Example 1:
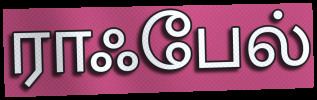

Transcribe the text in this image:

ராஃபேல்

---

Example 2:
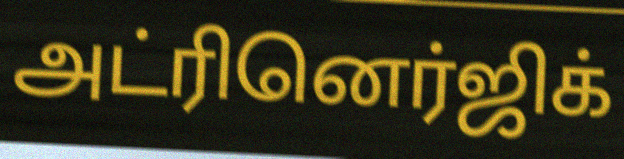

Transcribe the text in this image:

அட்ரினெர்ஜிக்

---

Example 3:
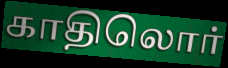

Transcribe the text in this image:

காதிலொர்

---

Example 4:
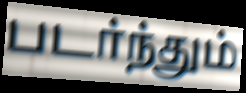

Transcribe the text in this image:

படர்ந்தும்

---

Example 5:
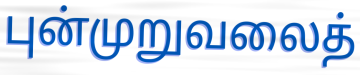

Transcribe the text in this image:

புன்முறுவலைத்